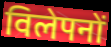
विलेपनों